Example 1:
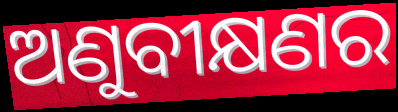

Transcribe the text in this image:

ଅଣୁବୀକ୍ଷଣର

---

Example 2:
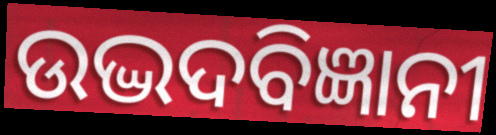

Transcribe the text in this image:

ଉଦ୍ଭଦବିଜ୍ଞାନୀ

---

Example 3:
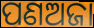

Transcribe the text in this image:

ପଣଅଜା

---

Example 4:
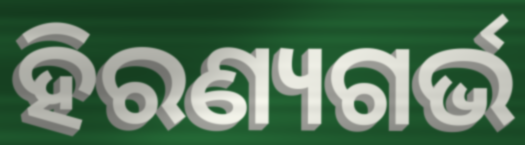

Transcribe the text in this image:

ହିରଣ୍ୟଗର୍ଭ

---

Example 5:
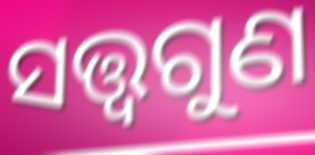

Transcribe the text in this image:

ସତ୍ତ୍ୱଗୁଣ